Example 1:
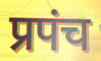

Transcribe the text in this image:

प्रपंच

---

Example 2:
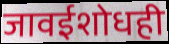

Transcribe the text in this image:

जावईशोधही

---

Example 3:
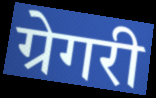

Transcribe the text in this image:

ग्रेगरी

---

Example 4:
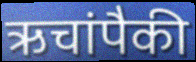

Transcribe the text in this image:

ऋचांपैकी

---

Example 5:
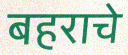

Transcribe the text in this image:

बहराचे